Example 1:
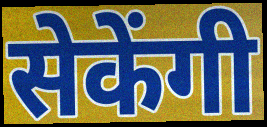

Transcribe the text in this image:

सेकेंगी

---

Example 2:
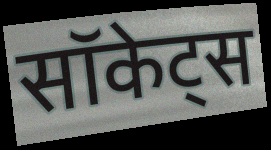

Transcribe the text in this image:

सॉकेट्स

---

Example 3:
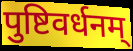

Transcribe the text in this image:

पुष्टिवर्धनम्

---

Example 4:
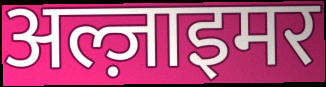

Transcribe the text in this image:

अल्ज़ाइमर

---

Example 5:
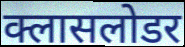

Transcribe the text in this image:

क्लासलोडर